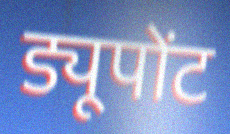
ड्यूपोंट